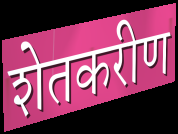
शेतकरीण